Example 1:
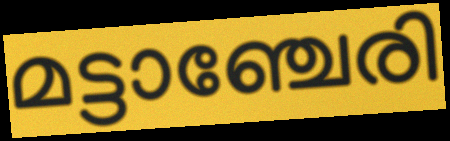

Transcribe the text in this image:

മട്ടാഞ്ചേരി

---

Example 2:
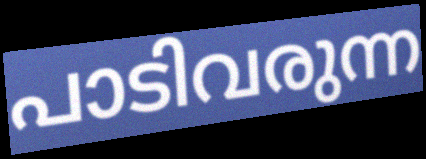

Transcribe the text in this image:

പാടിവരുന്ന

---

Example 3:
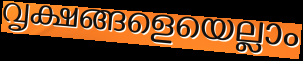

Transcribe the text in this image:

വൃക്ഷങ്ങളെയെല്ലാം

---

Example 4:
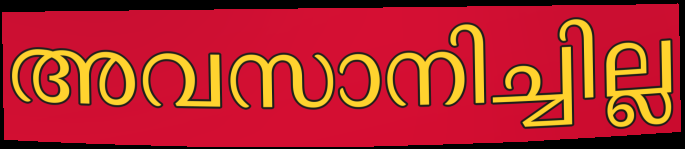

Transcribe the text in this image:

അവസാനിച്ചില്ല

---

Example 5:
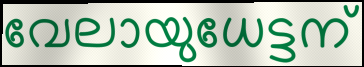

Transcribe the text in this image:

വേലായുധേട്ടന്